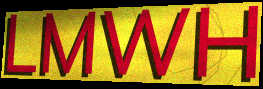
LMWH